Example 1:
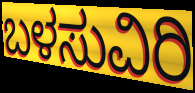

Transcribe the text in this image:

ಬಳಸುವಿರಿ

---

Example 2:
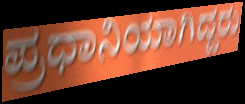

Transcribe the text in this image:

ಪ್ರಧಾನಿಯಾಗಿದ್ದರು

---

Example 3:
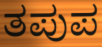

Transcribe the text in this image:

ತಪುಪ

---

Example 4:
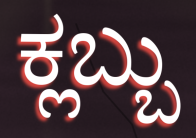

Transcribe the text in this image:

ಕ್ಲಬ್ಬು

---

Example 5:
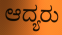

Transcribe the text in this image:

ಆದ್ಯರು